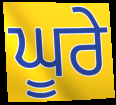
ਘੂਰੇ